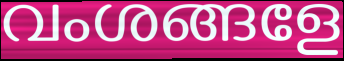
വംശങ്ങളേ